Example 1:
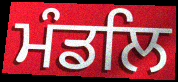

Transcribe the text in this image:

ਮੰਡਲਿ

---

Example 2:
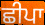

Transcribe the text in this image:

ਛੀਪਾ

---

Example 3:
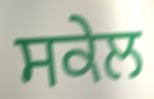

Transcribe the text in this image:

ਸਕੇਲ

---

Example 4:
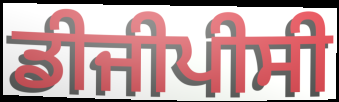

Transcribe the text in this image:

ਡੀਜੀਪੀਸੀ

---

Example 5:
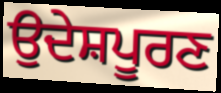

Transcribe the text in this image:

ਉਦੇਸ਼ਪੂਰਣ